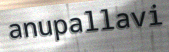
anupallavi